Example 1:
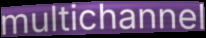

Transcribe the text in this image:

multichannel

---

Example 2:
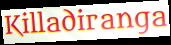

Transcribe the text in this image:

Killadiranga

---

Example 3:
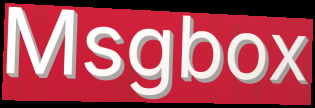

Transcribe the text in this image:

Msgbox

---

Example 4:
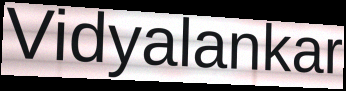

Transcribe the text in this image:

Vidyalankar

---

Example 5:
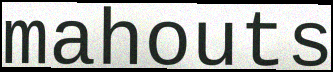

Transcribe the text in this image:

mahouts